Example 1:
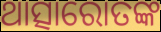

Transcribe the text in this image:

ଥାତ୍ସାରୋତଙ୍କ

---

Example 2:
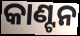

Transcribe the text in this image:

କାଣ୍ଟନ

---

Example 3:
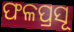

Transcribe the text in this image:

ଫଳପ୍ରସୂ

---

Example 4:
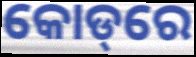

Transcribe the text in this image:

କୋଡ୍‌ରେ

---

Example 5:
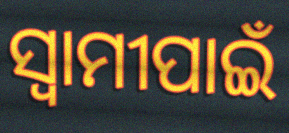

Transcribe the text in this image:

ସ୍ୱାମୀପାଇଁ